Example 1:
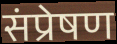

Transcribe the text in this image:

संप्रेषण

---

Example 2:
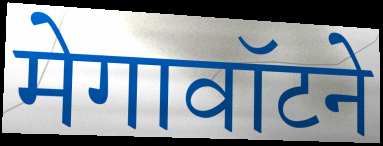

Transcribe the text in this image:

मेगावॉटने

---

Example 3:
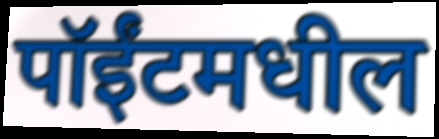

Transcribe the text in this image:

पॉईंटमधील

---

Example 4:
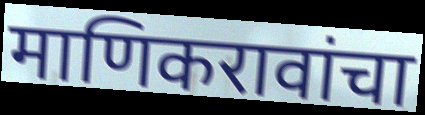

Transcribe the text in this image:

माणिकरावांचा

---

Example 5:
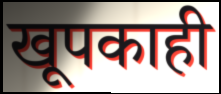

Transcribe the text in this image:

खूपकाही